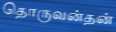
தொருவன்தன்